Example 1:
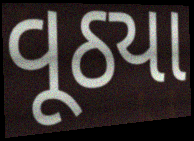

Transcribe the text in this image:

વૂઠ્યા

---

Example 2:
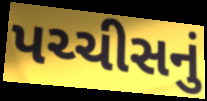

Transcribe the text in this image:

પચ્ચીસનું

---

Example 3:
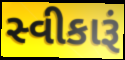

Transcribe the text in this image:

સ્વીકારૂં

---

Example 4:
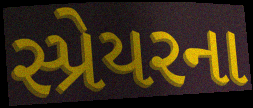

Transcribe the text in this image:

સ્પ્રેયરના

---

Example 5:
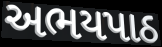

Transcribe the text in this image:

અભયપાઠ